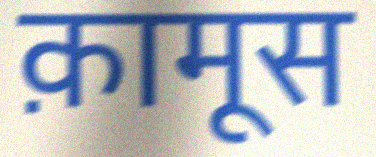
क़ामूस